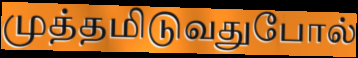
முத்தமிடுவதுபோல்